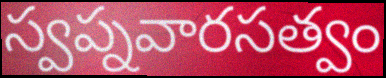
స్వప్నవారసత్వం